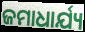
ଜମାଧାର୍ଯ୍ୟ